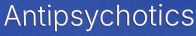
Antipsychotics